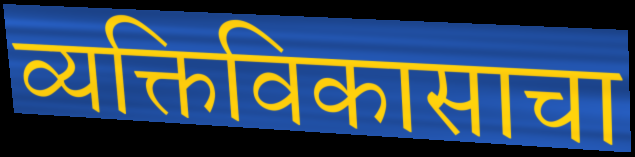
व्यक्तिविकासाचा